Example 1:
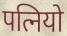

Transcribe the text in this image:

पत्नियो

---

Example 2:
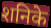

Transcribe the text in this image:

शनिके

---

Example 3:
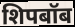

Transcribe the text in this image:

शिपबॉब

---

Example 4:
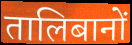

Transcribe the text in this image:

तालिबानों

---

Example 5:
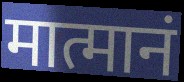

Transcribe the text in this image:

मात्मानं